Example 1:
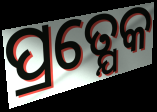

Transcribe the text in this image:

ପ୍ରତ୍ଯେକ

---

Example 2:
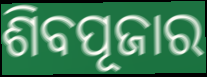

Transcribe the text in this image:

ଶିବପୂଜାର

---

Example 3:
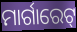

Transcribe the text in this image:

ମାର୍ଗାରେଟ୍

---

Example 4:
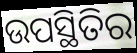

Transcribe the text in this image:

ଉପସ୍ଥିତିର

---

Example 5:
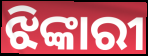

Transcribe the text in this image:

ଝିଙ୍କାରୀ